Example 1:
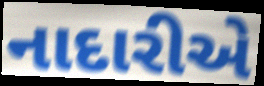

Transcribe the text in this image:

નાદારીએ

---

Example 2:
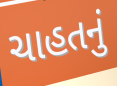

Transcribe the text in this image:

ચાહતનું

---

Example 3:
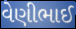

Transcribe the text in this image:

વેણીભાઈ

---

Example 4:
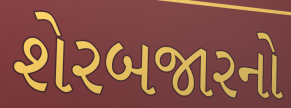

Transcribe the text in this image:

શેરબજારનો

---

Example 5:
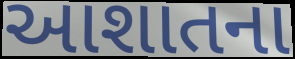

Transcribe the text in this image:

આશાતના